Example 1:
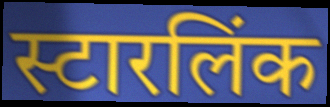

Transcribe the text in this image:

स्‍टारलिंक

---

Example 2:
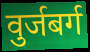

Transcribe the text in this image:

वुर्जबर्ग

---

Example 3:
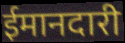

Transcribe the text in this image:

ईमानदारी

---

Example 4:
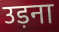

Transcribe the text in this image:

उड़ना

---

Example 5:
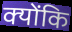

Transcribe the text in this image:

क्योंकि